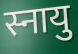
स्नायु